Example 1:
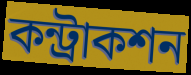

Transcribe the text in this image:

কন্ট্রাকশন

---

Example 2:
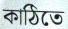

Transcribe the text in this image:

কাঠিতে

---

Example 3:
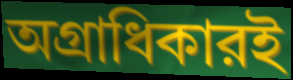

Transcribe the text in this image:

অগ্রাধিকারই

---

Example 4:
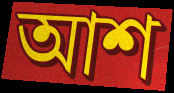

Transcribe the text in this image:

আশ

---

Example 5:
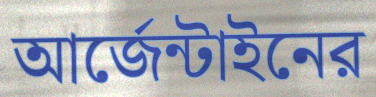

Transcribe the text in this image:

আর্জেন্টাইনের